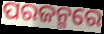
ପରଜନ୍ମରେ